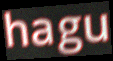
hagu